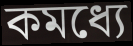
কমধ্যে